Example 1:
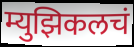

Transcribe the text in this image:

म्युझिकलचं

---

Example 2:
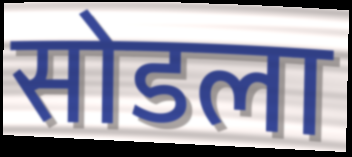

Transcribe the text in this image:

सोडला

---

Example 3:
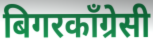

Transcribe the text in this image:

बिगरकाँग्रेसी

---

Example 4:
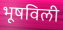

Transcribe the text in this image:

भूषविली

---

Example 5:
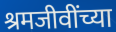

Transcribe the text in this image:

श्रमजीवींच्या